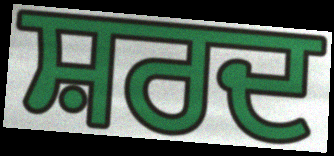
ਸ਼ਰਦ